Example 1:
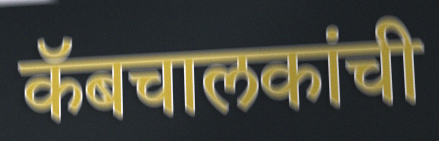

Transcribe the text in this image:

कॅबचालकांची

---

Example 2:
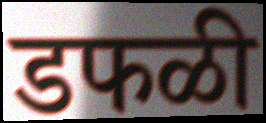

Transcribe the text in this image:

डफळी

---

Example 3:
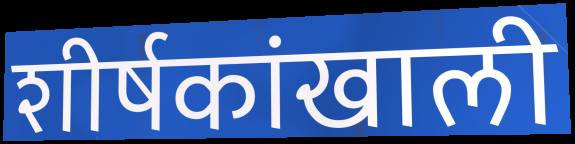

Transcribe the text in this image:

शीर्षकांखाली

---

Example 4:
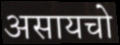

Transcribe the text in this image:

असायचो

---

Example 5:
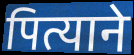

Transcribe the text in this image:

पित्याने